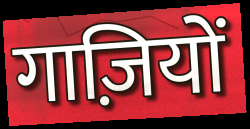
गाज़ियों